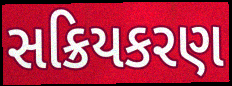
સક્રિયકરણ